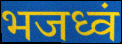
भजध्वं